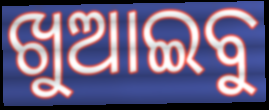
ଖୁଆଇବୁ